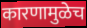
कारणामुळेच